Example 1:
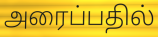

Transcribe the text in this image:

அரைப்பதில்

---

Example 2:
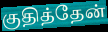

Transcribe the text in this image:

குதித்தேன்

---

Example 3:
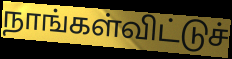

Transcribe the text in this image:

நாங்கள்விட்டுச்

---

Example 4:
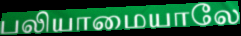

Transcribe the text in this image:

பலியாமையாலே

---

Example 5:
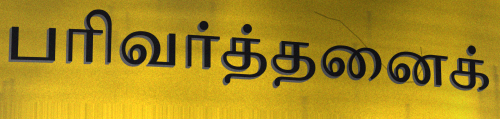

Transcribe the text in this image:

பரிவர்த்தனைக்